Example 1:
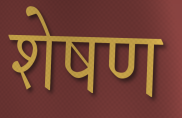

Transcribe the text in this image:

शेषण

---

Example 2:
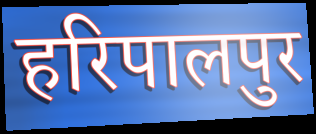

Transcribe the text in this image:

हरिपालपुर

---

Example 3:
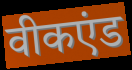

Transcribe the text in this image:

वीकएंड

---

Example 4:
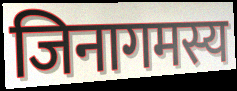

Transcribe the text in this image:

जिनागमस्य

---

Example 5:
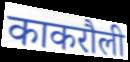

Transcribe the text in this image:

काकरौली